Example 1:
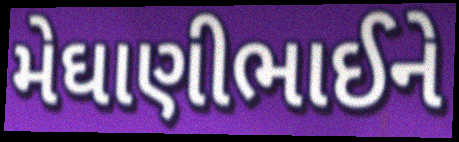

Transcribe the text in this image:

મેઘાણીભાઈને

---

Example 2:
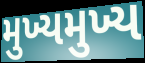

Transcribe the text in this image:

મુખ્યમુખ્ય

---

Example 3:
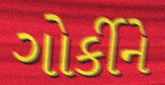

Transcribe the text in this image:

ગોર્કીને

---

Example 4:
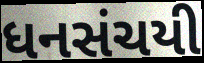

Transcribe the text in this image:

ધનસંચયી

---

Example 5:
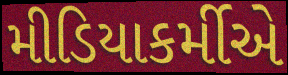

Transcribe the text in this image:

મીડિયાકર્મીએ